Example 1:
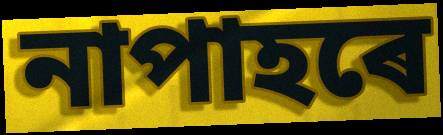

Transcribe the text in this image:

নাপাহৰে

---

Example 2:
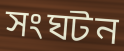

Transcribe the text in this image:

সংঘটন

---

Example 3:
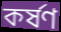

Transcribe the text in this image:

কৰ্ষণ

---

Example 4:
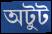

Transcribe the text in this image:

অটুট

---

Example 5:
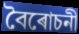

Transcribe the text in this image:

বৈৰোচনী